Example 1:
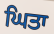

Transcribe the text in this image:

ਘਿਤਾ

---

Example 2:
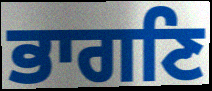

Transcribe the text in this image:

ਭਾਗਣਿ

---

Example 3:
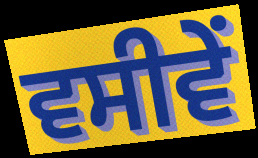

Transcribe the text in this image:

ਵਸੀਵੇਂ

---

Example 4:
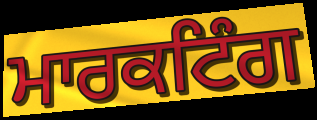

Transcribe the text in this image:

ਮਾਰਕਟਿੰਗ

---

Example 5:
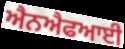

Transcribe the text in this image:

ਐਨਐਫਆਈ